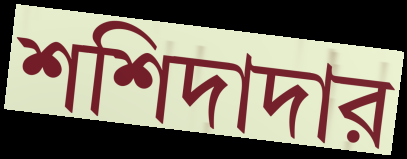
শশিদাদার